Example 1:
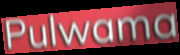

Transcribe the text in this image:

Pulwama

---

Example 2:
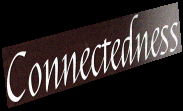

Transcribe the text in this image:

Connectedness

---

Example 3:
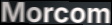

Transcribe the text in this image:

Morcom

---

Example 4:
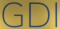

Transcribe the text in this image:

GDI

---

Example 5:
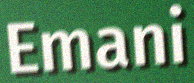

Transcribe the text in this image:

Emani